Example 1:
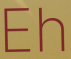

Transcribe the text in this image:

Eh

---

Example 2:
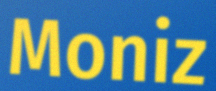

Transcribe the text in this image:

Moniz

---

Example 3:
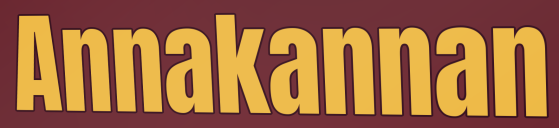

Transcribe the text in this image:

Annakannan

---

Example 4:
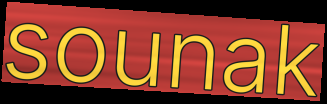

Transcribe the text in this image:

sounak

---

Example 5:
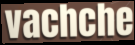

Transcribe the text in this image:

vachche